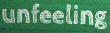
unfeeling